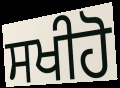
ਸਖੀਹੋ